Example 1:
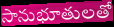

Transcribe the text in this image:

సానుభూతులతో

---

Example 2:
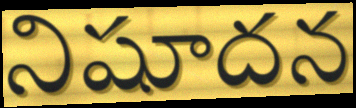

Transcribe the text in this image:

నిషూదన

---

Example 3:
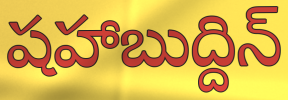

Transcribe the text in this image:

షహాబుద్దిన్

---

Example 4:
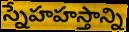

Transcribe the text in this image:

స్నేహహస్తాన్ని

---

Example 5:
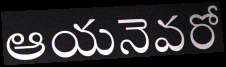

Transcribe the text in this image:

ఆయనెవరో